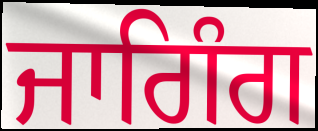
ਜਾਗਿੰਗ